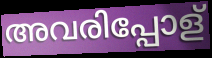
അവരിപ്പോള്